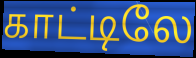
காட்டிலே